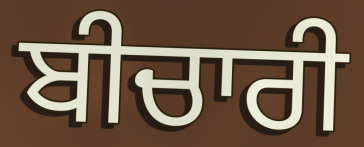
ਬੀਚਾਰੀ